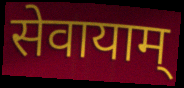
सेवायाम्